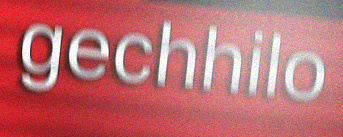
gechhilo